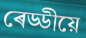
ৰেড্ডীয়ে